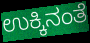
ಉಕ್ಕಿನಂತೆ